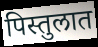
पिस्तुलात